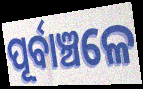
ପୂର୍ବାଞ୍ଚଳେ